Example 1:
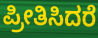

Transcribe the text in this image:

ಪ್ರೀತಿಸಿದರೆ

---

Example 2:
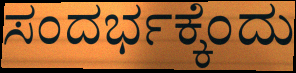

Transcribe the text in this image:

ಸಂದರ್ಭಕ್ಕೆಂದು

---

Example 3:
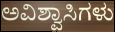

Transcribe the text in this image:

ಅವಿಶ್ವಾಸಿಗಳು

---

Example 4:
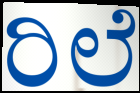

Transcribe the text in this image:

ರಿಲೆ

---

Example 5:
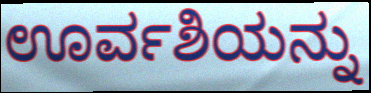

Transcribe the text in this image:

ಊರ್ವಶಿಯನ್ನು